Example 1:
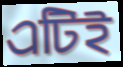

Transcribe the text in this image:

এটিই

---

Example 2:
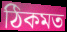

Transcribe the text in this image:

ঠিকমত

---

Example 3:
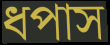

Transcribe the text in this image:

ধপাস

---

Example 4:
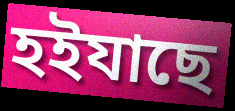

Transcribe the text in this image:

হইযাছে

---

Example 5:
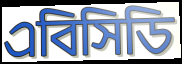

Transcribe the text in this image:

এবিসিডি